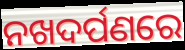
ନଖଦର୍ପଣରେ